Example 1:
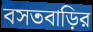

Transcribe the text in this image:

বসতবাড়ির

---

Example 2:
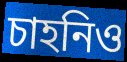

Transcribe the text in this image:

চাহনিও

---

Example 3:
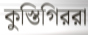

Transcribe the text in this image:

কুস্তিগিররা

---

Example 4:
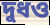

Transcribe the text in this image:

দুধও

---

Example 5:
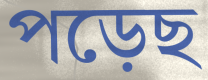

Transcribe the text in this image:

পড়েছ